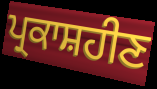
ਪ੍ਰਕਾਸ਼ਹੀਣ